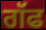
ਗੱਫ